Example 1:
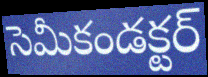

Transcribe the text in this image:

సెమీకండక్టర్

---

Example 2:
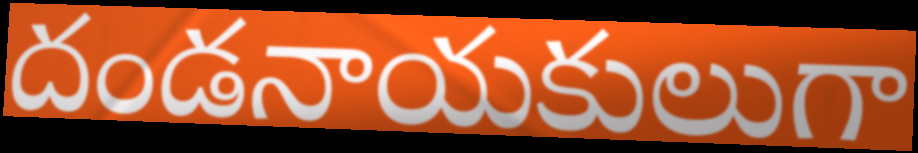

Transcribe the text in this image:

దండనాయకులుగా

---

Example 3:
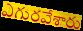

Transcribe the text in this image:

ఎగురవేశారు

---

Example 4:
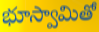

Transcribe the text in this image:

భూస్వామితో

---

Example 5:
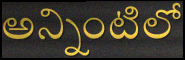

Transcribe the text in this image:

అన్నింటిలో